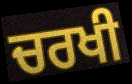
ਚਰਖੀ